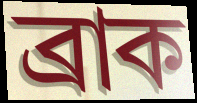
ব্রাক